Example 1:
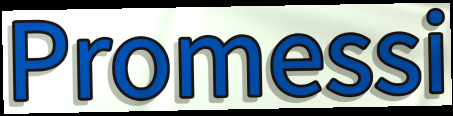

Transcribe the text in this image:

Promessi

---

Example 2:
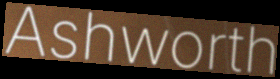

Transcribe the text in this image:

Ashworth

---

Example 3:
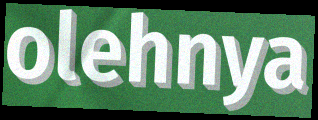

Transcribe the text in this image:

olehnya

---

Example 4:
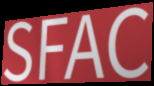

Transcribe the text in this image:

SFAC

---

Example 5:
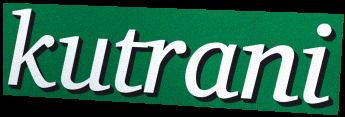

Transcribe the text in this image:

kutrani